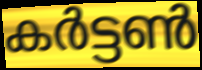
കർട്ടൺ